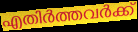
എതിർത്തവർക്ക്